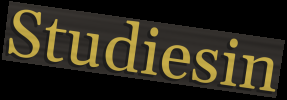
Studiesin